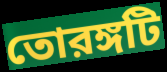
তোরঙ্গটি